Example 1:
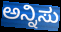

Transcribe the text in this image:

ಅನ್ನಿಸು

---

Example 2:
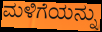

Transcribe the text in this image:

ಮಳಿಗೆಯನ್ನು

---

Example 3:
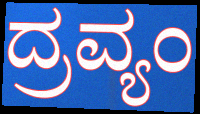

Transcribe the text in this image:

ದ್ರವ್ಯಂ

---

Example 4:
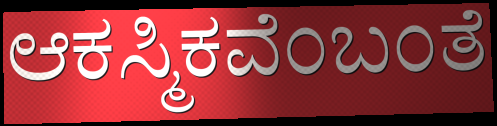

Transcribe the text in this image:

ಆಕಸ್ಮಿಕವೆಂಬಂತೆ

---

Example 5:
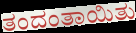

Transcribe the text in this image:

ತಂದಂತಾಯಿತು